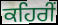
ਕਹਿਰੀਂ